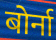
बोर्ना